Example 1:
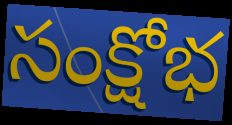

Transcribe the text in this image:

సంక్షోభ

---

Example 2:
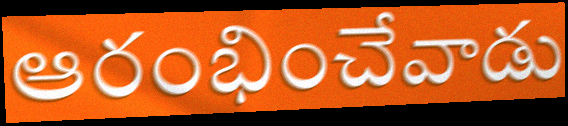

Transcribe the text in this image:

ఆరంభించేవాడు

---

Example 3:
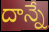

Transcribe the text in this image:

దాన్నే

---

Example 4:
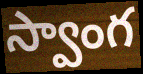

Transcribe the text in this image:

స్వాంగ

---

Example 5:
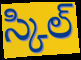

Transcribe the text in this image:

స్కిల్